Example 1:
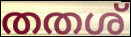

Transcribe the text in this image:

തതശ്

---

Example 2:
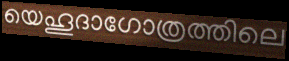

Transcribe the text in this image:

യെഹൂദാഗോത്രത്തിലെ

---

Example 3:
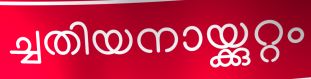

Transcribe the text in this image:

ച്ചതിയനായ്ക്കുറ്റം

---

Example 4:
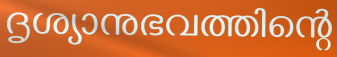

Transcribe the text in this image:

ദൃശ്യാനുഭവത്തിന്റെ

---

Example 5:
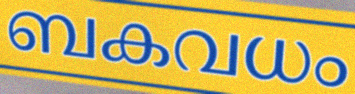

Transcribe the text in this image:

ബകവധം